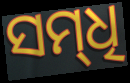
ସମ୍‌ଧି